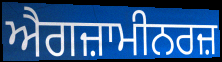
ਐਗਜ਼ਾਮੀਨਰਜ਼